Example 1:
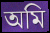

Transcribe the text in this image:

অমি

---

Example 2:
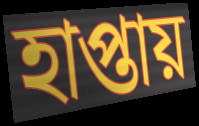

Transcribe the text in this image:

হাপ্তায়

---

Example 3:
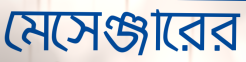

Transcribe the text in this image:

মেসেঞ্জারের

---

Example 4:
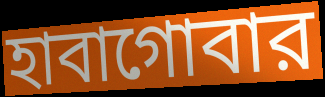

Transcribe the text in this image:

হাবাগোবার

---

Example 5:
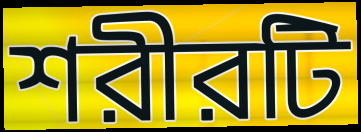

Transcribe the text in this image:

শরীরটি